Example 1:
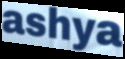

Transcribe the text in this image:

ashya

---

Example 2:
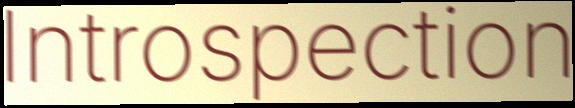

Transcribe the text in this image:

Introspection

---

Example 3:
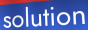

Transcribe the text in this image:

solution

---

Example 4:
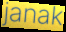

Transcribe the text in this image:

janak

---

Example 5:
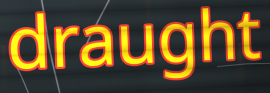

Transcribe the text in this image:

draught